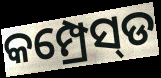
କମ୍ପ୍ରେସ୍‌ଡ